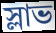
স্লাভ